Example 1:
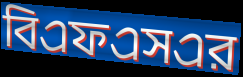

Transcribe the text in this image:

বিএফএসএর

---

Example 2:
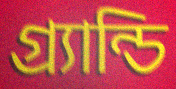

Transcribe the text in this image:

গ্র্যান্ডি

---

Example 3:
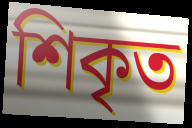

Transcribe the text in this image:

শিকৃত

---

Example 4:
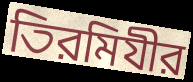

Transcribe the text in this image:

তিরমিযীর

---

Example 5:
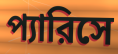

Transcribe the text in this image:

প্যারিসে